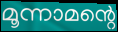
മൂന്നാമന്റെ